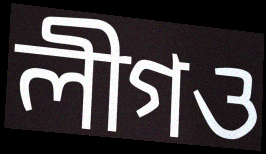
লীগও